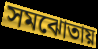
সমঝোতায়